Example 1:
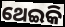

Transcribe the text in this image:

ଥେଇକି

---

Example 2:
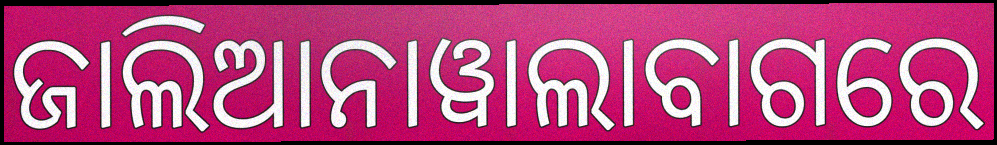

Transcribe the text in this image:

ଜାଲିଆନାୱାଲାବାଗରେ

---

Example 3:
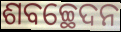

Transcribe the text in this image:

ଶବଚ୍ଛେଦନ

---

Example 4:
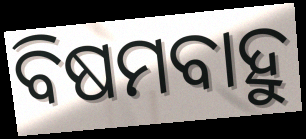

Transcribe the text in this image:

ବିଷମବାହୁ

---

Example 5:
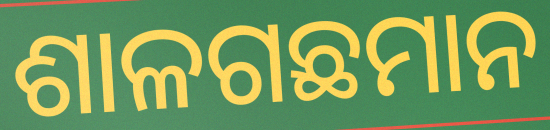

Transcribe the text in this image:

ଶାଳଗଛମାନ